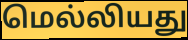
மெல்லியது